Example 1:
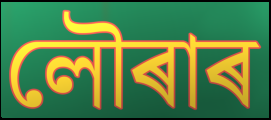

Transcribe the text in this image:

লৌৰাৰ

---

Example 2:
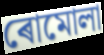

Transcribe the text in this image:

ৰোমোলা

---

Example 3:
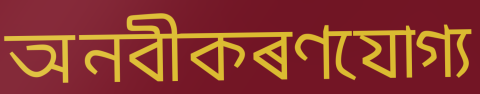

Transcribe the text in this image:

অনবীকৰণযোগ্য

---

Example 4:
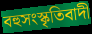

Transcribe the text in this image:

বহুসংস্কৃতিবাদী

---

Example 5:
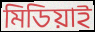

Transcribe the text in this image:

মিডিয়াই